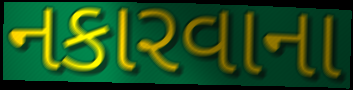
નકારવાના